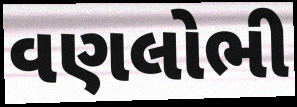
વણલોભી